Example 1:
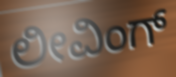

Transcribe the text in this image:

ಲೀವಿಂಗ್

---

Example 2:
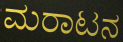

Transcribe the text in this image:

ಮರಾಟನ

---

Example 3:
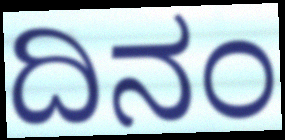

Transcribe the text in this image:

ದಿನಂ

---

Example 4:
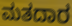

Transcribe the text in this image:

ಮತದಾರ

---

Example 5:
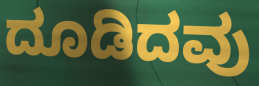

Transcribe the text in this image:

ದೂಡಿದವು